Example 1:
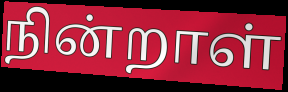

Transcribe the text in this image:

நின்றாள்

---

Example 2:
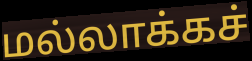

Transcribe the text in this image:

மல்லாக்கச்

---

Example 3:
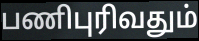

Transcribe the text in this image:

பணிபுரிவதும்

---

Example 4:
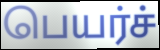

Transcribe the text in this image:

பெயர்ச்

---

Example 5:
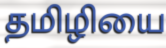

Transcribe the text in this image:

தமிழியை